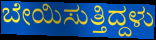
ಬೇಯಿಸುತ್ತಿದ್ದಳು